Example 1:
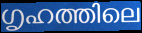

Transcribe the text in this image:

ഗൃഹത്തിലെ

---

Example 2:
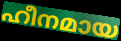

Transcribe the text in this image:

ഹീനമായ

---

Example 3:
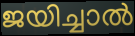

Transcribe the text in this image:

ജയിച്ചാൽ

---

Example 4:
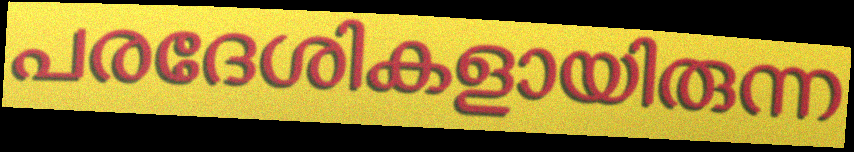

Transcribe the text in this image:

പരദേശികളായിരുന്ന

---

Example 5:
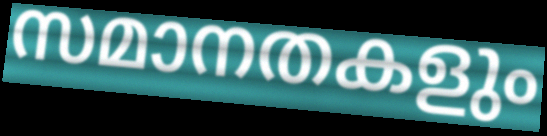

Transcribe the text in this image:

സമാനതകളും